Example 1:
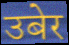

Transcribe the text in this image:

उबेर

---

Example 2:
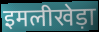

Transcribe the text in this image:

इमलीखेड़ा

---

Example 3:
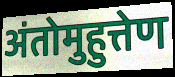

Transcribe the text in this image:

अंतोमुहुत्तेण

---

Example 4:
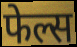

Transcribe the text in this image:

फेल्स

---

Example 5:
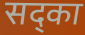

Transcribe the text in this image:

सद्का